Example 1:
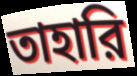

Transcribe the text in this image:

তাহারি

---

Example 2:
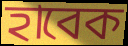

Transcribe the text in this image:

হাবেক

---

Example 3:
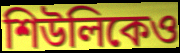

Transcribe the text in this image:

শিউলিকেও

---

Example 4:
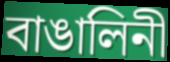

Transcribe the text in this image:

বাঙালিনী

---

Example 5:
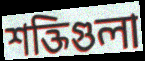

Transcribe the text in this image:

শক্তিগুলা